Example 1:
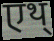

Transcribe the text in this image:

एथ्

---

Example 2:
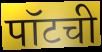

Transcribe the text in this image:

पॉटची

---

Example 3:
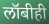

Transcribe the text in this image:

लॉबीही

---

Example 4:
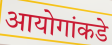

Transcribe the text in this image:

आयोगांकडे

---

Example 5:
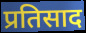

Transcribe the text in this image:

प्रतिसाद